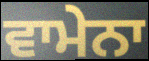
ਵਾਮੇਨਾ